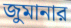
জুমানার